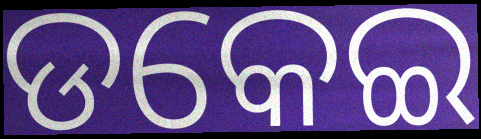
ଡକେଇ